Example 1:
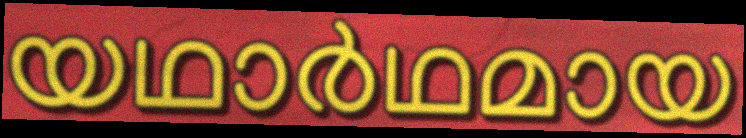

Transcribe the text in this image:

യഥാർഥമായ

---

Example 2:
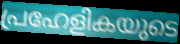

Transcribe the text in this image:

പ്രഹേളികയുടെ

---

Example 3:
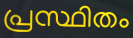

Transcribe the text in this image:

പ്രസ്ഥിതം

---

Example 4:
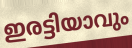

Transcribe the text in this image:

ഇരട്ടിയാവും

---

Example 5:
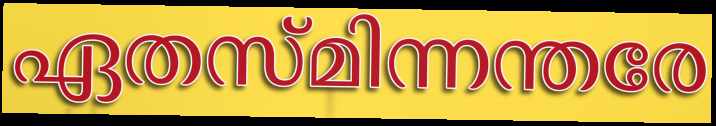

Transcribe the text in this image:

ഏതസ്മിന്നന്തരേ